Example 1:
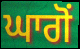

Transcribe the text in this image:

ਘਾਗੋਂ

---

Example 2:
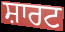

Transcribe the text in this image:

ਸ਼ਾਰਟ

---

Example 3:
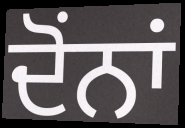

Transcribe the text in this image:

ਦੋਂਨਾਂ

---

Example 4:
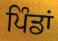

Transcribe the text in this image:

ਪਿੰਡਾਂ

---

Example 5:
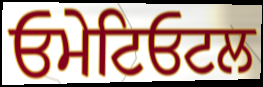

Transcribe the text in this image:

ਓਮੇਟਿਓਟਲ